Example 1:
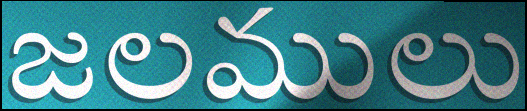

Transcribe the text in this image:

జలములు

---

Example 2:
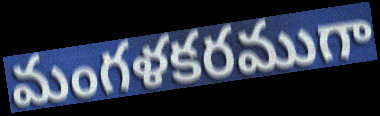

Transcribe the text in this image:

మంగళకరముగా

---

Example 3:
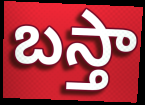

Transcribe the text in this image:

బస్తా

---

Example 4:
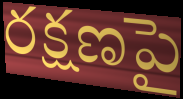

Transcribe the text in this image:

రక్షణపై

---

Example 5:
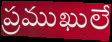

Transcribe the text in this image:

ప్రముఖులే